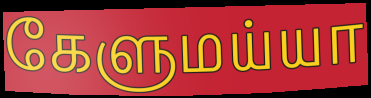
கேளுமய்யா